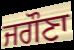
ਜਗੌਣਾ